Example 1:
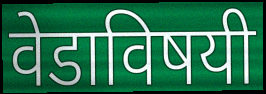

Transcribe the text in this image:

वेडाविषयी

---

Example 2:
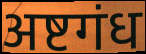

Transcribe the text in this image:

अष्टगंध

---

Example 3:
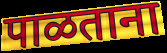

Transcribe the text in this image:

पाळताना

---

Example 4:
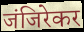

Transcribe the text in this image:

जंजिरेकर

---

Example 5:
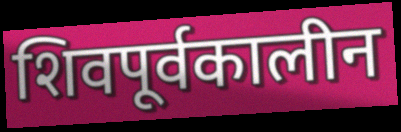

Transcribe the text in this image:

शिवपूर्वकालीन